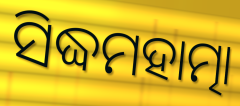
ସିଦ୍ଧମହାତ୍ମା